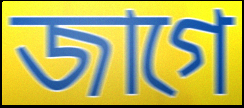
জাগে